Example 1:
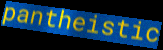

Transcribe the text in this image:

pantheistic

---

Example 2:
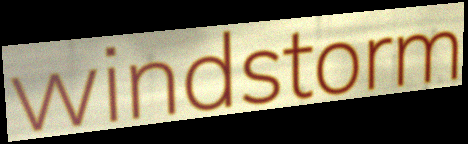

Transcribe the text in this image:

windstorm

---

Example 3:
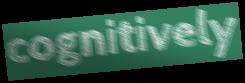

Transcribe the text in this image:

cognitively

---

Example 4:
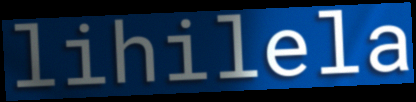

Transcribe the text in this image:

lihilela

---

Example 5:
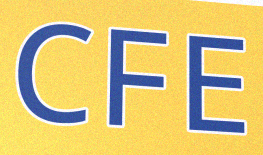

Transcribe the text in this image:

CFE